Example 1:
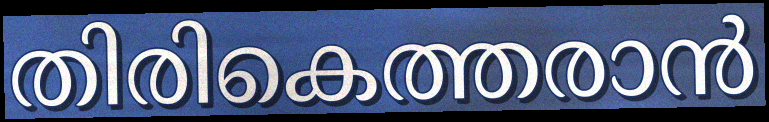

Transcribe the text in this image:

തിരികെത്തരാൻ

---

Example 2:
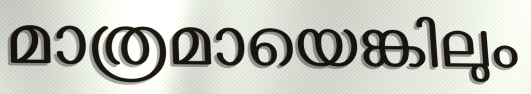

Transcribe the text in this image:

മാത്രമായെങ്കിലും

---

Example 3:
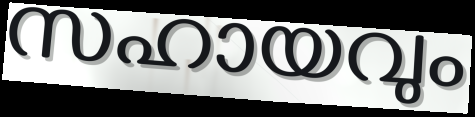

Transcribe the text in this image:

സഹായവും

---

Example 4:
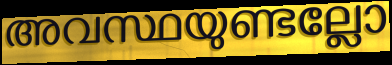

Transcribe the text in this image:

അവസ്ഥയുണ്ടല്ലോ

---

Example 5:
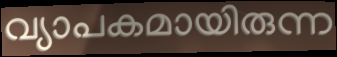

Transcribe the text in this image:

വ്യാപകമായിരുന്ന